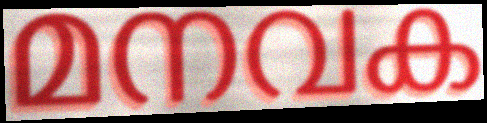
മനവക